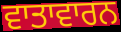
ਵਾਤਾਵਾਰਨ